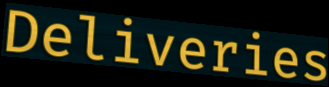
Deliveries